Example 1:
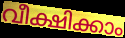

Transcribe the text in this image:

വീക്ഷിക്കാം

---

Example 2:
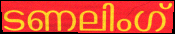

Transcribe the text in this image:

ടണലിംഗ്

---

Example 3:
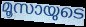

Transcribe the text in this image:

മൂസായുടെ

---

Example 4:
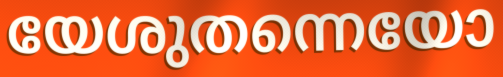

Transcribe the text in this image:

യേശുതന്നെയോ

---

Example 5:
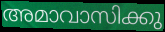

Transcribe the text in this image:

അമാവാസിക്കു